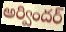
అర్విందర్